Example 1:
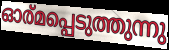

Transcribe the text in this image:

ഓര്മപ്പെടുത്തുന്നു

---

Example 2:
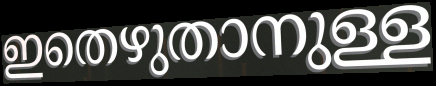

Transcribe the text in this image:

ഇതെഴുതാനുള്ള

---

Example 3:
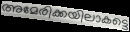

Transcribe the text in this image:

അമേരിക്കയിലാകട്ടെ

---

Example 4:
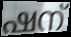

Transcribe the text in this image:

ഷന്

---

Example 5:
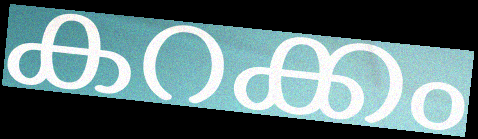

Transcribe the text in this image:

കറക്കം